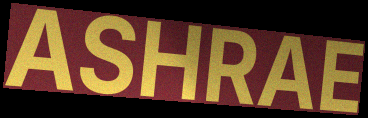
ASHRAE